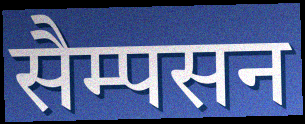
सैम्पसन